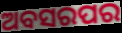
ଅବସରପର